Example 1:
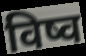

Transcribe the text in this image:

विष्व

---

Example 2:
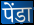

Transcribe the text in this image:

पेंडा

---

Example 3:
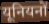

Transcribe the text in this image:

यूनियनों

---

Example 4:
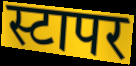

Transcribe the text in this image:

स्टापर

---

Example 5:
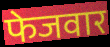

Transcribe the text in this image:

फेजवार